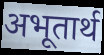
अभूतार्थ